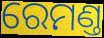
ରେମଣ୍ତ